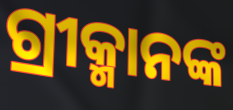
ଗ୍ରୀକ୍ମାନଙ୍କ